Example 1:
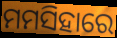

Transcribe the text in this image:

ମମସିହାରେ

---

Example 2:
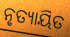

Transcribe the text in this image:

ନୃତ୍ୟାୟିତ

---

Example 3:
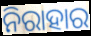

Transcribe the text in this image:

ନିରାହାର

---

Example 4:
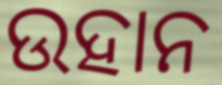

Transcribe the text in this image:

ଉହାନ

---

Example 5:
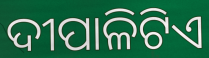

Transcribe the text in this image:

ଦୀପାଳିଟିଏ